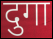
दुगा